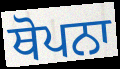
ਥੋਪਨਾ